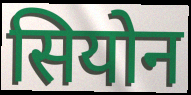
सियोन